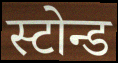
स्टोन्ड